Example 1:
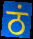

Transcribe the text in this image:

ठं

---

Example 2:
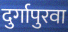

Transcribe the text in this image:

दुर्गापुरवा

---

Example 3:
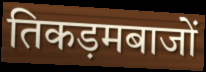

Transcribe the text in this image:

तिकड़मबाजों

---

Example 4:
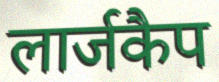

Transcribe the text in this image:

लार्जकैप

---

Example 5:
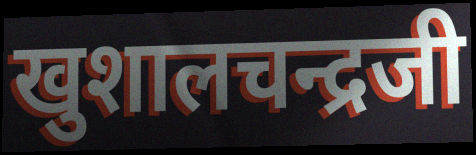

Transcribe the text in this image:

खुशालचन्द्रजी